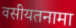
वसीयतनामा